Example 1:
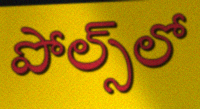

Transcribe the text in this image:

పోల్స్‌లో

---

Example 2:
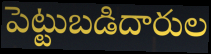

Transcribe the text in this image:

పెట్టుబడిదారుల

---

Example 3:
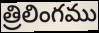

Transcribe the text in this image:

త్రిలింగము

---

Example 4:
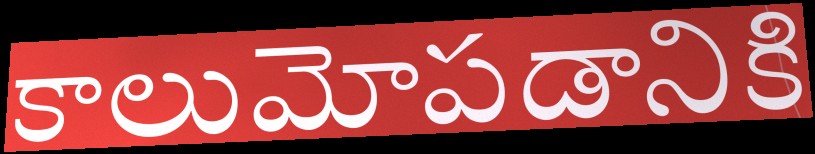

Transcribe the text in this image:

కాలుమోపడానికి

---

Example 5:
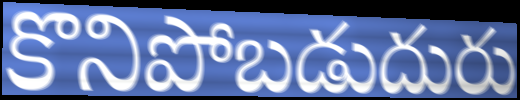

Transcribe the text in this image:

కొనిపోబడుదురు